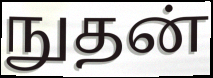
நுதன்